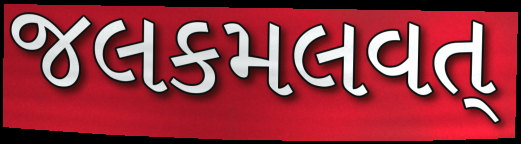
જલકમલવત્